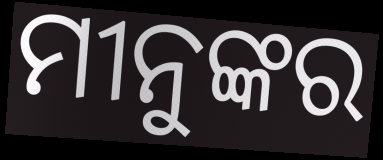
ମୀନୁଙ୍କର